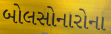
બોલસોનારોના